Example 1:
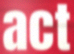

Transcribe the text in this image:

act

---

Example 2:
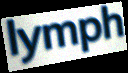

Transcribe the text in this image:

lymph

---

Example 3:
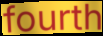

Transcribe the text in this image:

fourth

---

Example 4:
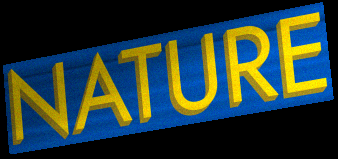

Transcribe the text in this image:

NATURE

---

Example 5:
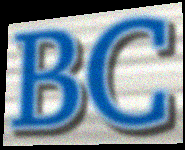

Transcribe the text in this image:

BC